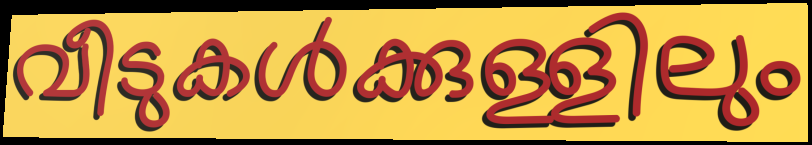
വീടുകൾക്കുള്ളിലും